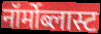
नॉर्मोब्लास्ट